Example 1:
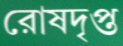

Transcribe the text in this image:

রোষদৃপ্ত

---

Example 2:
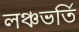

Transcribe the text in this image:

লঞ্চভর্তি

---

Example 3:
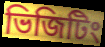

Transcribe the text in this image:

ভিজিটিং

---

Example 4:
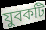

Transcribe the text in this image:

যুবকটি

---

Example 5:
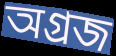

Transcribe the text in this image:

অগ্রজ